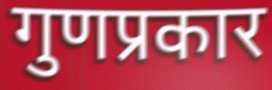
गुणप्रकार